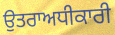
ਉਤਰਾਅਧੀਕਾਰੀ